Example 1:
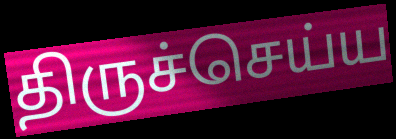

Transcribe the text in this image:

திருச்செய்ய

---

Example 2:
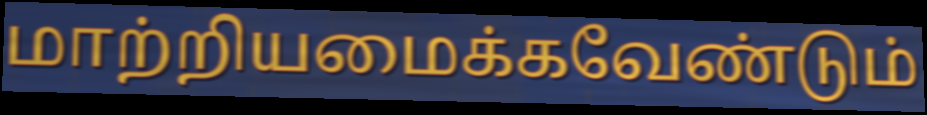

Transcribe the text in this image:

மாற்றியமைக்கவேண்டும்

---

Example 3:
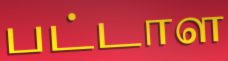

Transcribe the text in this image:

பட்டாள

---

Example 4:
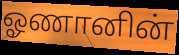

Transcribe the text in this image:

ஓணானின்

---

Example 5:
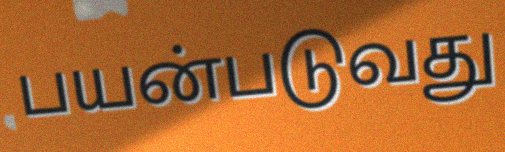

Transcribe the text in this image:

பயன்படுவது